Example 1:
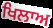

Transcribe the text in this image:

ਖਿਲਾਅ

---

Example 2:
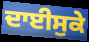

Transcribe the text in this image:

ਦਾਈਸੁਕੇ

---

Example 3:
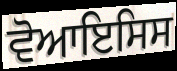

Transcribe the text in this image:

ਵੋਆਇਸਿਸ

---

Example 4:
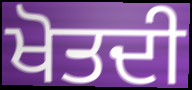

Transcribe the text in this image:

ਖੋਤਦੀ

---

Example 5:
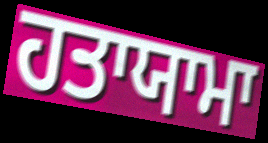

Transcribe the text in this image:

ਹਤਾਯਾਮਾ